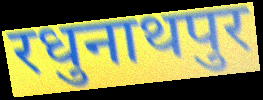
रधुनाथपुर